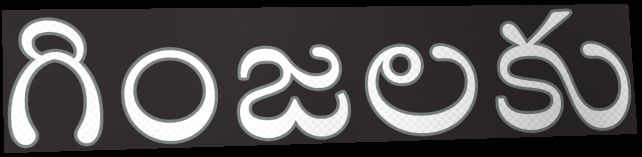
గింజలకు